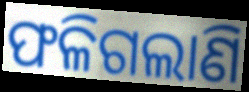
ଫଳିଗଲାଣି